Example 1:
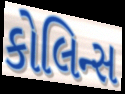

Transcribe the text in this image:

કોલિન્સ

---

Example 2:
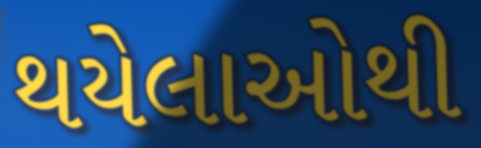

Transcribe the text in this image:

થયેલાઓથી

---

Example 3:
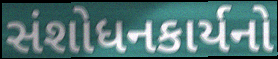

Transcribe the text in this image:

સંશોધનકાર્યનો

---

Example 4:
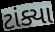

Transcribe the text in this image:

ટાંક્યા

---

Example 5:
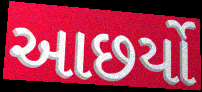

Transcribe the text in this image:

આછર્યો